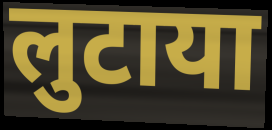
लुटाया